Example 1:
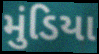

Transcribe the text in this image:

મુંડિયા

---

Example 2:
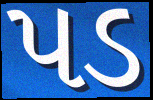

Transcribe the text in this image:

પડ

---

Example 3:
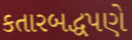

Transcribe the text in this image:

કતારબદ્ધપણે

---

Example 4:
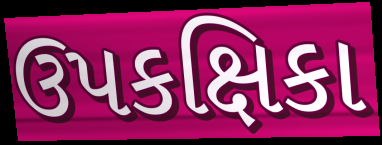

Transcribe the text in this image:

ઉપકક્ષિકા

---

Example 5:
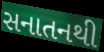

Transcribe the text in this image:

સનાતનથી